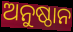
ଅନୁଷ୍ଠାନ